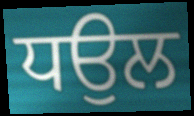
ਧਉਲ